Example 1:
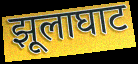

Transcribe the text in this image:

झूलाघाट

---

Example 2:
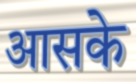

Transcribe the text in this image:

आसके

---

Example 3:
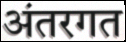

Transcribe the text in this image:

अंतरगत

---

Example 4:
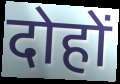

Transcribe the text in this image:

दोहों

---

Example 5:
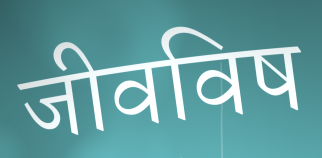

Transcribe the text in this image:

जीवविष